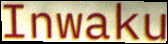
Inwaku